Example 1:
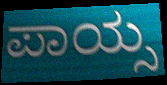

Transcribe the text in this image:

ಪಾಯ್ಸ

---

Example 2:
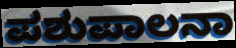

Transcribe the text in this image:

ಪಶುಪಾಲನಾ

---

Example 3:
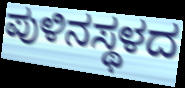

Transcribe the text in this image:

ಪುಳಿನಸ್ಥಳದ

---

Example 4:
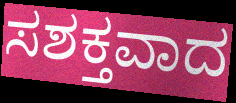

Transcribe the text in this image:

ಸಶಕ್ತವಾದ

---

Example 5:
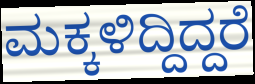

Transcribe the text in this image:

ಮಕ್ಕಳಿದ್ದಿದ್ದರೆ